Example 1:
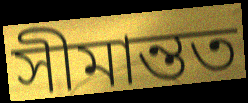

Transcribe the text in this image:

সীমান্তত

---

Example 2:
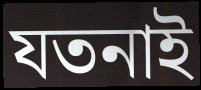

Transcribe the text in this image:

যতনাই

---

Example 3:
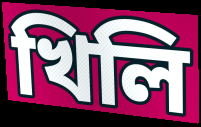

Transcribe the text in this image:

খিলি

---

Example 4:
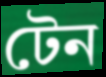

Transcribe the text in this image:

টেন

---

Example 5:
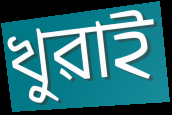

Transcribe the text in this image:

খুৱাই